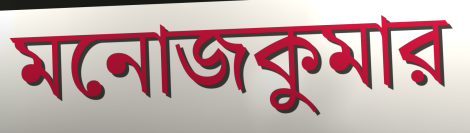
মনোজকুমার